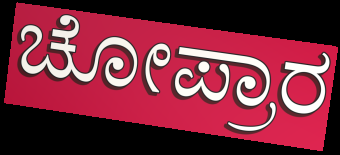
ಚೋಪ್ರಾರ